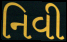
નિવી